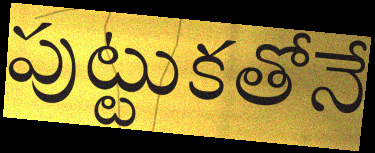
పుట్టుకతోనే